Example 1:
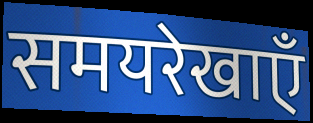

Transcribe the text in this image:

समयरेखाएँ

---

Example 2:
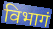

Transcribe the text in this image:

विभागं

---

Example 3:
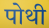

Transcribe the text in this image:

पोथी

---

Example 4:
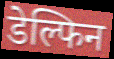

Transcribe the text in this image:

डेल्फिन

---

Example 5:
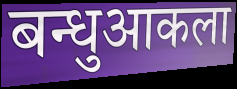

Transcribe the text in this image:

बन्धुआकला